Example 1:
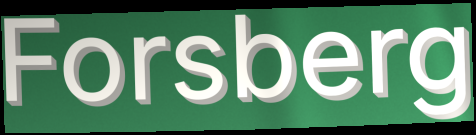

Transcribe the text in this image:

Forsberg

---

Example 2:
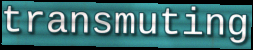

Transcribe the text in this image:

transmuting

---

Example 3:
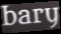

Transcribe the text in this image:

bary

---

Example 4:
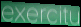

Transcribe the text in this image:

exercitu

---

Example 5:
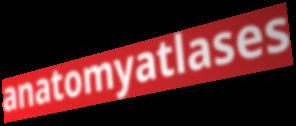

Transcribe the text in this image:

anatomyatlases